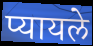
प्यायले